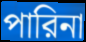
পারিনা